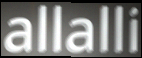
allalli